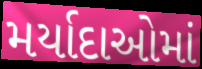
મર્યાદાઓમાં